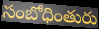
సంబోధింతురు